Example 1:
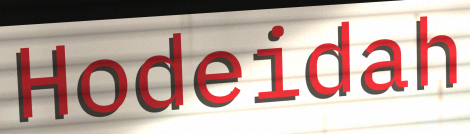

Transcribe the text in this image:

Hodeidah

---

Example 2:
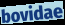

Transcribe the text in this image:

bovidae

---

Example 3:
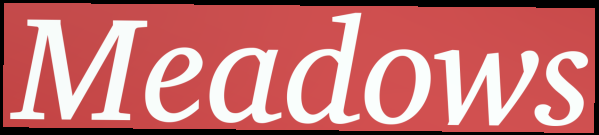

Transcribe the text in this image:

Meadows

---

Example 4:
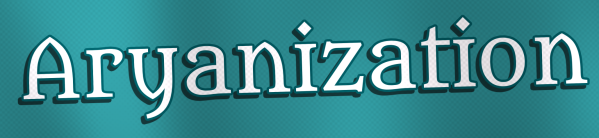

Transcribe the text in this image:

Aryanization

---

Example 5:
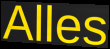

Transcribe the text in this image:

Alles